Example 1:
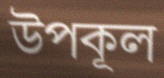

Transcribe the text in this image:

উপকূল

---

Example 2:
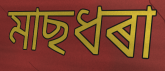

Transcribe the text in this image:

মাছধৰা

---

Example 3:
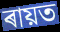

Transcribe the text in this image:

ৰায়ত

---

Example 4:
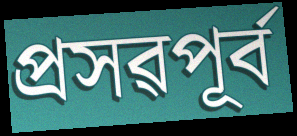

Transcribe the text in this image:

প্ৰসৱপূৰ্ব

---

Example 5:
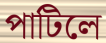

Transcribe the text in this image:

পাটিলে